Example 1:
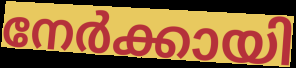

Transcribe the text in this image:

നേർക്കായി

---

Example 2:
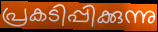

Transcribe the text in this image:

പ്രകടിപ്പിക്കുന്നു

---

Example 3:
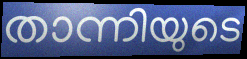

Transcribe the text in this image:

താന്നിയുടെ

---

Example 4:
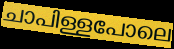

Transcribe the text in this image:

ചാപിള്ളപോലെ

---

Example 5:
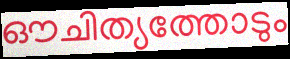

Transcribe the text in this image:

ഔചിത്യത്തോടും